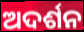
ଅଦର୍ଶନ